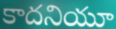
కాదనియూ